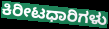
ಕಿರೀಟಧಾರಿಗಳು